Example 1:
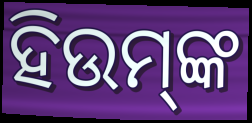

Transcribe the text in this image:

ହିଉମ୍‌ଙ୍କ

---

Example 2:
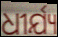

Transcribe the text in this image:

ଧୀର୍ଯ୍ୟ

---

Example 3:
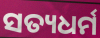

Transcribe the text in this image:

ସତ୍ୟଧର୍ମ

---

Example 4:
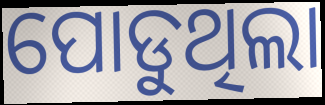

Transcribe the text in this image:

ପୋଡୁଥିଲା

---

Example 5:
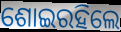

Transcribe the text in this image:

ଶୋଇରହିଲେ